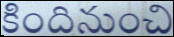
కిందినుంచి